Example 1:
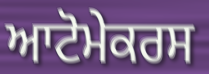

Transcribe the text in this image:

ਆਟੋਮੇਕਰਸ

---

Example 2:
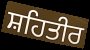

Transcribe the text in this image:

ਸ਼ਹਿਤੀਰ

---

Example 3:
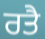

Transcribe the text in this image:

ਰਤੈ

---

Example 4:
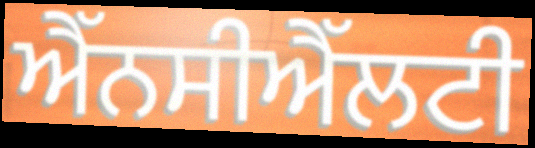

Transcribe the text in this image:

ਐੱਨਸੀਐੱਲਟੀ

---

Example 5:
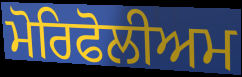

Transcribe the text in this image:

ਮੋਰਿਫੋਲੀਅਮ